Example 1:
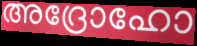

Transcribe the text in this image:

അദ്രോഹോ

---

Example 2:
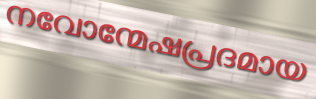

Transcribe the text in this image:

നവോന്മേഷപ്രദമായ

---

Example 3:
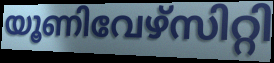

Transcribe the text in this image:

യൂണിവേഴ്സിറ്റി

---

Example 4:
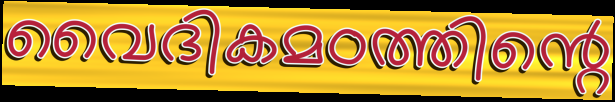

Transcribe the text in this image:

വൈദികമഠത്തിന്റെ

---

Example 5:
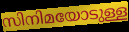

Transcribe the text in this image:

സിനിമയോടുള്ള